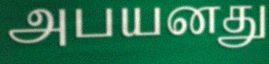
அபயனது